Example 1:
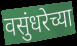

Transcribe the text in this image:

वसुंधरेच्या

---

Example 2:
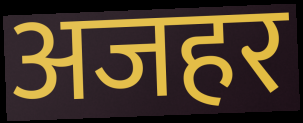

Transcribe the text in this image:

अजहर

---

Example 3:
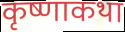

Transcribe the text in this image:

कृष्णाकथा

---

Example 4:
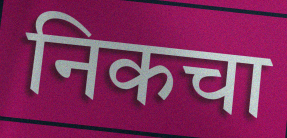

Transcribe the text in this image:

निकचा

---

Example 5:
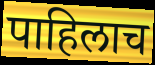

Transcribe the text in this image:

पाहिलाच